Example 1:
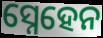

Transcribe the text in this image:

ସ୍ନେହେନ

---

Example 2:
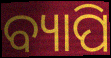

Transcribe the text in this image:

ବ୍ୟାପି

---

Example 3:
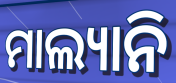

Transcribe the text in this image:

ମାଲ୍ୟାନି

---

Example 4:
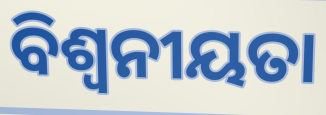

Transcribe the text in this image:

ବିଶ୍ୱନୀୟତା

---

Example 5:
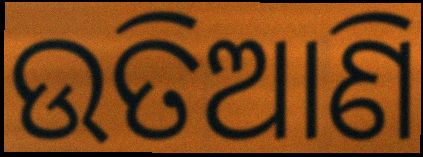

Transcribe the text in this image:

ଉତିଆଣି